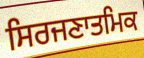
ਸਿਰਜਣਾਤਮਿਕ